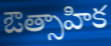
ఔత్సాహిక